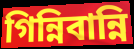
গিন্নিবান্নি